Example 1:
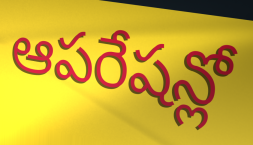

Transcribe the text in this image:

ఆపరేషన్లో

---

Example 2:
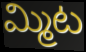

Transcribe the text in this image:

మ్మిట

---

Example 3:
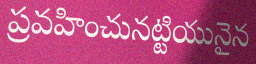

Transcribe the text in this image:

ప్రవహించునట్టియునైన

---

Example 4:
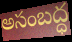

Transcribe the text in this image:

అసంబద్ధ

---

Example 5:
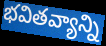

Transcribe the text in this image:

భవితవ్యాన్ని